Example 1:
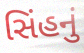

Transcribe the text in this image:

સિંહનું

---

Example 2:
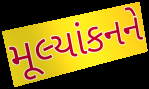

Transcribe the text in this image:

મૂલ્યાંકનને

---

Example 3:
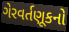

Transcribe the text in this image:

ગેરવર્તણૂકનો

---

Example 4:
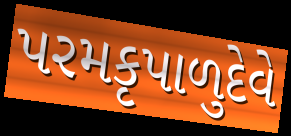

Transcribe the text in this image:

પરમકૃપાળુદેવે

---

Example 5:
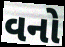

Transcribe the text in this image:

વનો